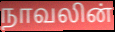
நாவலின்